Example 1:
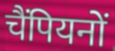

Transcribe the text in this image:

चैंपियनों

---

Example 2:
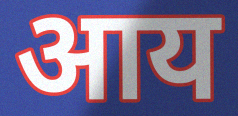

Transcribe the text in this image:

आय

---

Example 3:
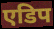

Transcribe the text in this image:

एडिप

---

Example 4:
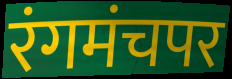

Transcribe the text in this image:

रंगमंचपर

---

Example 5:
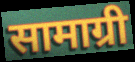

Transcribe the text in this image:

सामाग्री